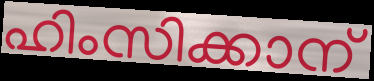
ഹിംസിക്കാന്